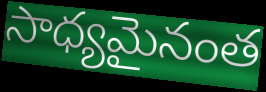
సాధ్యమైనంత